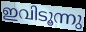
ഇവിടൂന്നു